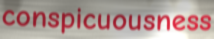
conspicuousness